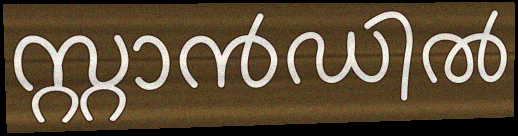
സ്റ്റാൻഡിൽ